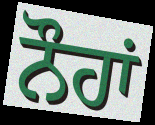
ਨੌਹਾਂ